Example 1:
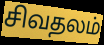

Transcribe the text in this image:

சிவதலம்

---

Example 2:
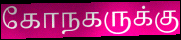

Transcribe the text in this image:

கோநகருக்கு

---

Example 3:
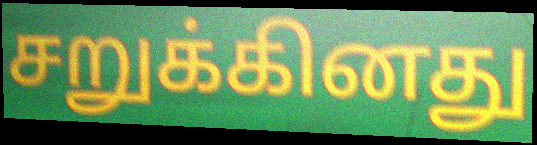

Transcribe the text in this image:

சறுக்கினது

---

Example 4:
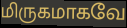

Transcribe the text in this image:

மிருகமாகவே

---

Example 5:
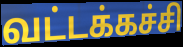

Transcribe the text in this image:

வட்டக்கச்சி